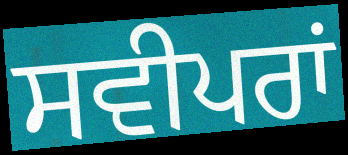
ਸਵੀਪਰਾਂ